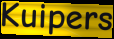
Kuipers